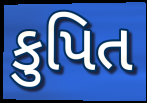
કુપિત